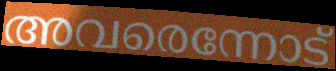
അവരെന്നോട്